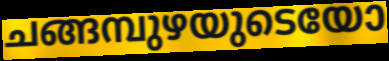
ചങ്ങമ്പുഴയുടെയോ